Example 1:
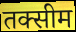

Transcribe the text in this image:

तक्सीम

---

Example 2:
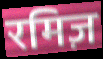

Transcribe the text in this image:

रमिज़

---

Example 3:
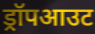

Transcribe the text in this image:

ड्रॉपआउट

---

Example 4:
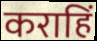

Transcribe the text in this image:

कराहिं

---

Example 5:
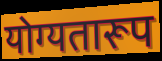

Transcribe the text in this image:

योग्यतारूप